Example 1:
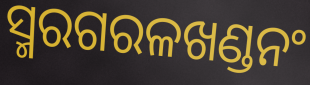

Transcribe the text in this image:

ସ୍ମରଗରଳଖଣ୍ଡନଂ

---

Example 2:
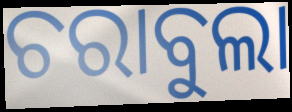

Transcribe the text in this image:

ଚରାବୁଲା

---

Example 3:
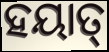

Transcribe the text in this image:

ହୟାତ୍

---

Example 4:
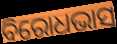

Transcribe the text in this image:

ବିରୋଧଭାସ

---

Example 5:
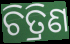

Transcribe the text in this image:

ଚିତ୍ରିଣ